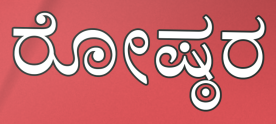
ರೋಷ್ಠರ